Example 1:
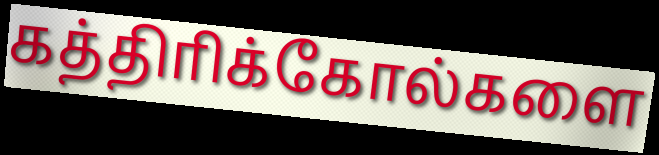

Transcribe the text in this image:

கத்திரிக்கோல்களை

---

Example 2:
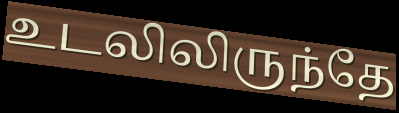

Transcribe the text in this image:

உடலிலிருந்தே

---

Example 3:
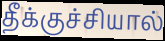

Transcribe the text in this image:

தீக்குச்சியால்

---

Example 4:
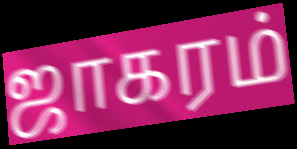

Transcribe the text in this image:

ஜாகரம்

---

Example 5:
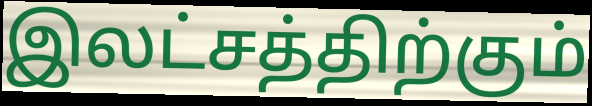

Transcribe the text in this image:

இலட்சத்திற்கும்